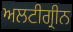
ਅਲਟੀਗ੍ਰੀਨ